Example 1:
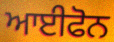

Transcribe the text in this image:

ਆਈਫੋਨ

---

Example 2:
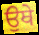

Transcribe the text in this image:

ਉਥੇ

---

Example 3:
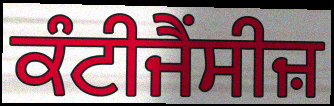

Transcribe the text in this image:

ਕੰਟੀਜੈਂਸੀਜ਼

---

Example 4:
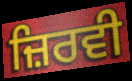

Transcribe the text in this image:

ਜ਼ਿਰਵੀ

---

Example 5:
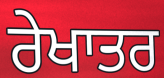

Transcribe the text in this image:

ਰੇਖਾਤਰ